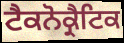
ਟੈਕਨੋਕ੍ਰੈਟਿਕ